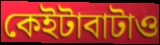
কেইটাবাটাও